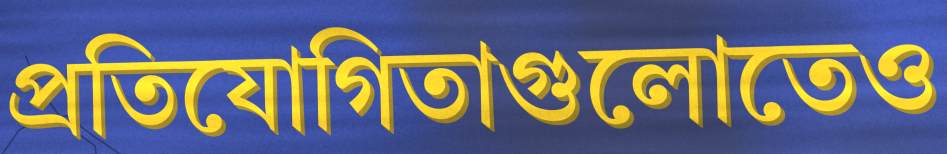
প্রতিযোগিতাগুলোতেও